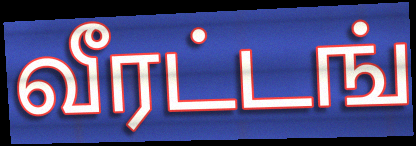
வீரட்டங்